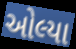
ઓલ્યા